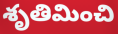
శృతిమించి